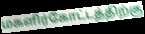
மகளிர்கோட்டத்திற்கு